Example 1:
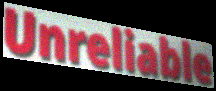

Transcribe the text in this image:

Unreliable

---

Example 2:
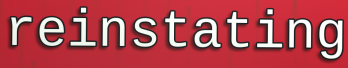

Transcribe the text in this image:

reinstating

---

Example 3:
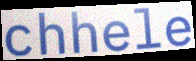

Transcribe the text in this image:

chhele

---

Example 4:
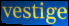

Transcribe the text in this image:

vestige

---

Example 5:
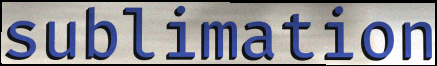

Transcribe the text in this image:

sublimation